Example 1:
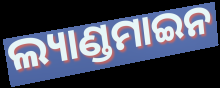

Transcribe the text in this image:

ଲ୍ୟାଣ୍ଡମାଇନ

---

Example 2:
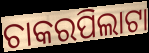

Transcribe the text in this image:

ଚାକରପିଲାଟା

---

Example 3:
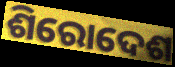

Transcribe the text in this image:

ଶିରୋଦେଶ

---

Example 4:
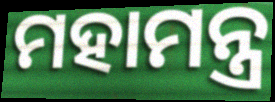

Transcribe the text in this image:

ମହାମନ୍ତ୍ର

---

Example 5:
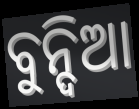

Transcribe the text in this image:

ବୁନ୍ଦିଆ